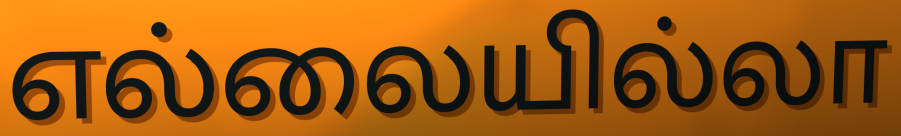
எல்லையில்லா